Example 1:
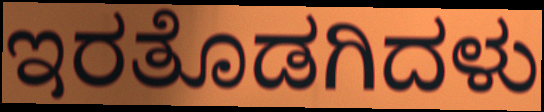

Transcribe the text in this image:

ಇರತೊಡಗಿದಳು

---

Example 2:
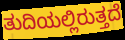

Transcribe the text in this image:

ತುದಿಯಲ್ಲಿರುತ್ತದೆ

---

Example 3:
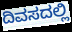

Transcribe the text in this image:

ದಿವಸದಲ್ಲಿ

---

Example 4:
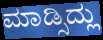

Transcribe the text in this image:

ಮಾಡ್ಸಿದ್ಲು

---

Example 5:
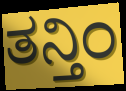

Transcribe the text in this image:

ತನ್ತಿಂ